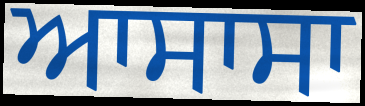
ਆਸਾਸਾ